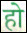
हो